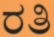
ರತಿ